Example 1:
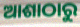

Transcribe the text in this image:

ଆଶାଠାରୁ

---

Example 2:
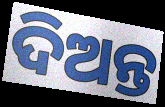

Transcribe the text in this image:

ଦିଅନ୍ତ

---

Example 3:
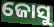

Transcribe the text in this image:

ଜୋସୁ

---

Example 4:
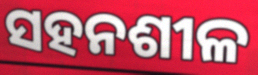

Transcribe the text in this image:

ସହନଶୀଳ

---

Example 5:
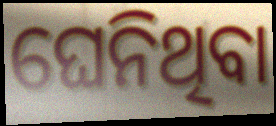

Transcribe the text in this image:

ଘେନିଥିବା